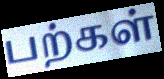
பற்கள்